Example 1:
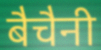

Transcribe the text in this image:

बैचैनी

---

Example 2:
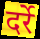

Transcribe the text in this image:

दर्रे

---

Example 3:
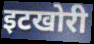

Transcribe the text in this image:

इटखोरी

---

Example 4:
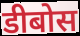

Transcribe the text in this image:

डीबोस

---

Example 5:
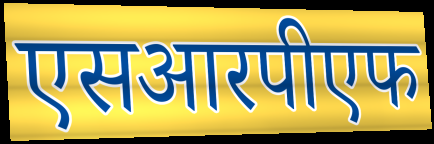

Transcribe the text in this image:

एसआरपीएफ